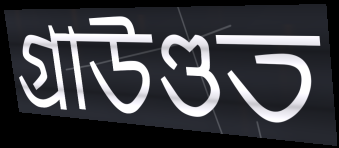
গ্ৰাউণ্ডত